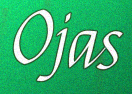
Ojas